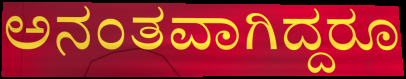
ಅನಂತವಾಗಿದ್ದರೂ